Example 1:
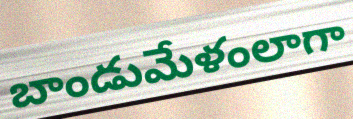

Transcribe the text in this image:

బాండుమేళంలాగా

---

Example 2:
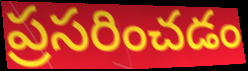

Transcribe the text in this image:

ప్రసరించడం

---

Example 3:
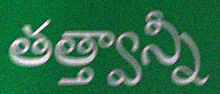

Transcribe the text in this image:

తత్త్వాన్నీ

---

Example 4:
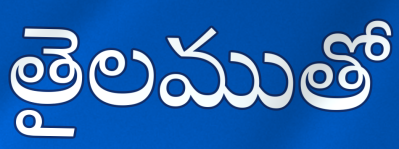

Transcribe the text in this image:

తైలముతో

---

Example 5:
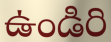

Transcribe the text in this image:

ఉండిరి